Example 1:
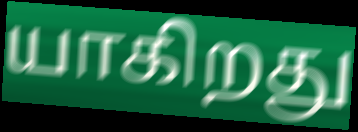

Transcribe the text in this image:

யாகிறது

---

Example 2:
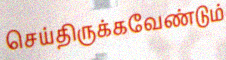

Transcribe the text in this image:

செய்திருக்கவேண்டும்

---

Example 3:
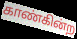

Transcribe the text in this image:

காண்கின்ற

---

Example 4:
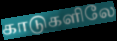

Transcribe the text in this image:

காடுகளிலே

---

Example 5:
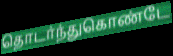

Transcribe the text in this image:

தொடர்ந்துகொண்டே